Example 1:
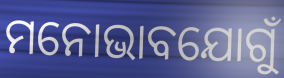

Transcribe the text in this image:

ମନୋଭାବଯୋଗୁଁ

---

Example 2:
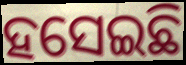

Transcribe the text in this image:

ହସେଇଛି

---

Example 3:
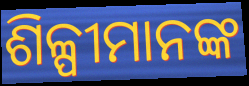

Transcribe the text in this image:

ଶିଳ୍ପୀମାନଙ୍କ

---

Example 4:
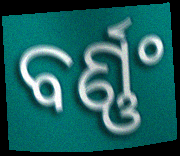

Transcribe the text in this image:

ବର୍ଣ୍ଣଂ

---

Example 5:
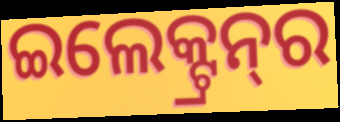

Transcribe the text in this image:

ଇଲେକ୍ଟ୍ରନ୍‌ର